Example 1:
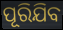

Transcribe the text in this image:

ପୂରିଯିବ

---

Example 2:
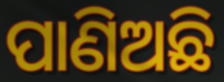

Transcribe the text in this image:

ପାଣିଅଛି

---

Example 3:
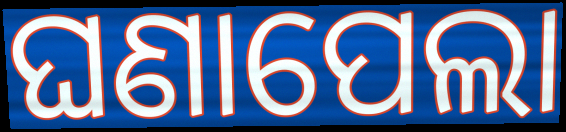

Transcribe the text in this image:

ଘଣାପେଲା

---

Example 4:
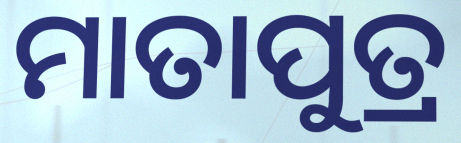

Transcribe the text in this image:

ମାତାପୁତ୍ର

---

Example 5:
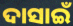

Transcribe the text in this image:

ଦାସାଇଁ